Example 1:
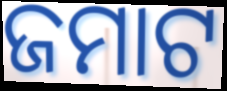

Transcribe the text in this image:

ଜମାଟ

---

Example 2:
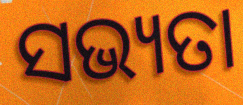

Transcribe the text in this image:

ସଭ୍ଯତା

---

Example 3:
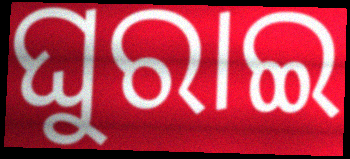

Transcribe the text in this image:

ଘୁରାଇ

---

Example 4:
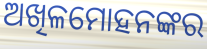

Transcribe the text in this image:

ଅଖିଳମୋହନଙ୍କର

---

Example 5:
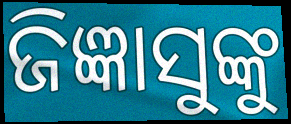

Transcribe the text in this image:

ଜିଜ୍ଞାସୁଙ୍କୁ